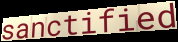
sanctified